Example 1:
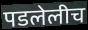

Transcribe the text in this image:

पडलेलीच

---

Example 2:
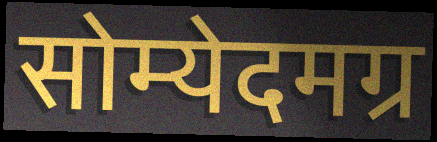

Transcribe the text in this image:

सोम्येदमग्र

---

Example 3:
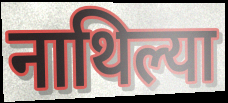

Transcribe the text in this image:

नाथिल्या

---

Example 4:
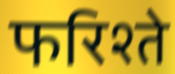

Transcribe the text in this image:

फरिश्ते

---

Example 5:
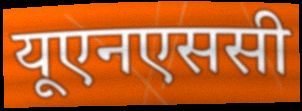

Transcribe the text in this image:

यूएनएससी